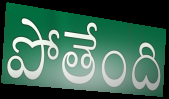
పోతేంది